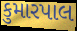
કુમારપાલ